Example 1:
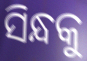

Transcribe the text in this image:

ସିନ୍ଧକୁ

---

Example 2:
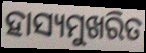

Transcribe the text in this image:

ହାସ୍ୟମୁଖରିତ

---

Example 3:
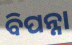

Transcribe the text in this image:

ବିପନ୍ନା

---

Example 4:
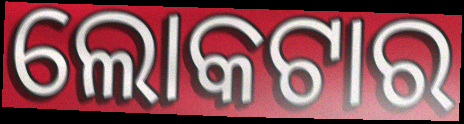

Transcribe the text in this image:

ଲୋକଟାର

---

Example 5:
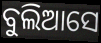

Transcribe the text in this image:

ବୁଲିଆସେ